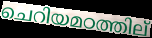
ചെറിയമഠത്തില്